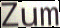
Zum